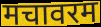
मचावरम